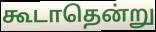
கூடாதென்று